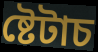
ষ্টেটাচ